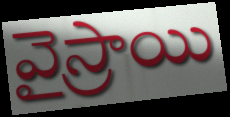
వైస్రాయి